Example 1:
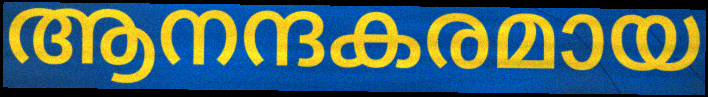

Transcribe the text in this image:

ആനന്ദകരമായ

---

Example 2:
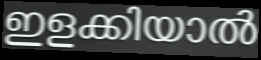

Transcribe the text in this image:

ഇളക്കിയാൽ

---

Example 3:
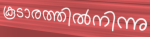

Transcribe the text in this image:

കൂടാരത്തിൽനിന്നു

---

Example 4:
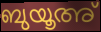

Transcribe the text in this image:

ബുയൂഅ്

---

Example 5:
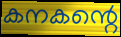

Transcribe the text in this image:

കനകന്റെ